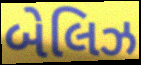
બેલિઝ